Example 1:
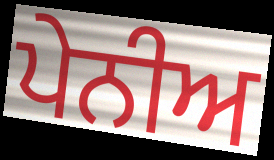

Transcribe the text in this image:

ਪੇਨੀਅ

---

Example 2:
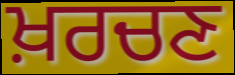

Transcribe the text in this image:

ਖ਼ਰਚਣ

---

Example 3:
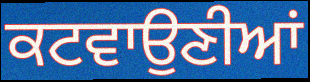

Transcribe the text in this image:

ਕਟਵਾਉਣੀਆਂ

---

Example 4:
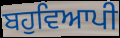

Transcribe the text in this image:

ਬਹੁਵਿਆਪੀ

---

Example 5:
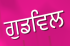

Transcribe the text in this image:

ਗੁਡਵਿਲ